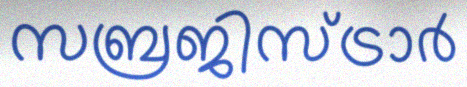
സബ്രജിസ്ട്രാർ